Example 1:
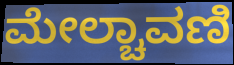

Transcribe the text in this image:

ಮೇಲ್ಚಾವಣಿ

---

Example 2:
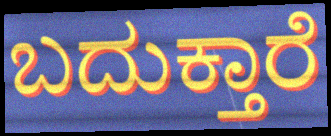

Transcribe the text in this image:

ಬದುಕ್ತಾರೆ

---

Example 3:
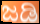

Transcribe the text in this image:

ಜಡಿ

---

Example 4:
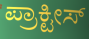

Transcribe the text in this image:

ಪ್ರಾಕ್ಟೀಸ್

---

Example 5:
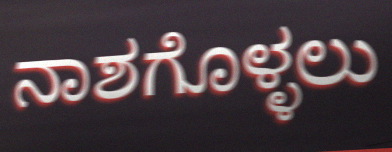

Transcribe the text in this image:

ನಾಶಗೊಳ್ಳಲು